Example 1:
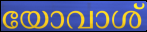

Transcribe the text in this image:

യോവാശ്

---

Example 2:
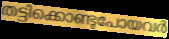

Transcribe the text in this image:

തട്ടിക്കൊണ്ടുപോയവർ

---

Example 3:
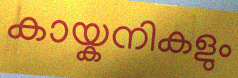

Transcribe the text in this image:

കായ്കനികളും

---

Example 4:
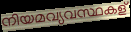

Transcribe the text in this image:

നിയമവ്യവസ്ഥകള്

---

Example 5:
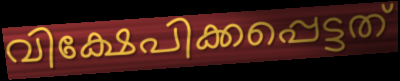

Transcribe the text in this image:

വിക്ഷേപിക്കപ്പെട്ടത്